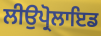
ਲੀਉਪ੍ਰੋਲਾਇਡ